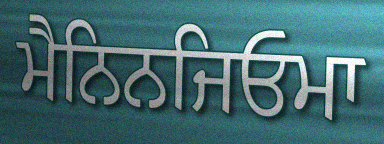
ਮੈਨਿਨਜਿਓਮਾ